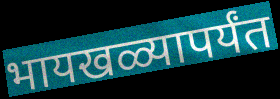
भायखळ्यापर्यंत